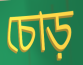
চোড়